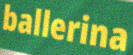
ballerina